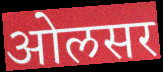
ओलसर